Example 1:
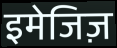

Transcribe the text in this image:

इमेजिज़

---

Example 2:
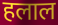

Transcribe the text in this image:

हलाल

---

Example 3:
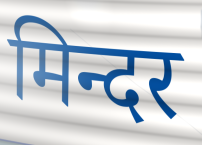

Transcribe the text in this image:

मिन्दर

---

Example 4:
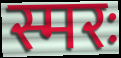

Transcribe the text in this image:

स्मरः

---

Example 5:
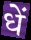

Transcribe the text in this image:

धें